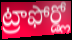
ట్రాఫోర్డ్లో